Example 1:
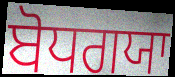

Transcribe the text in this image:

ਬੋਧਗਯਾ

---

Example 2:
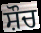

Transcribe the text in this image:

ਸ਼ੌਚ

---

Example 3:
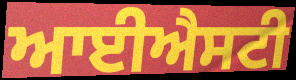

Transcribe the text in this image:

ਆਈਐਸਟੀ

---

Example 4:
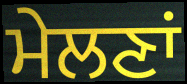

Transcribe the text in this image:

ਮੇਲਣਾਂ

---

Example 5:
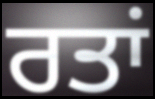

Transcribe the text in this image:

ਰਤਾਂ